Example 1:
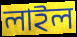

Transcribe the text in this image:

লাইল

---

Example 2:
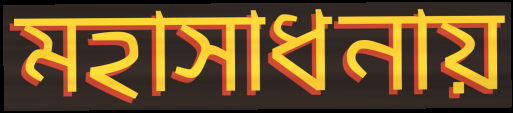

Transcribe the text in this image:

মহাসাধনায়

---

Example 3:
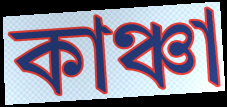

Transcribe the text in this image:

কাঞ্চা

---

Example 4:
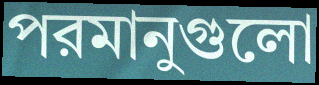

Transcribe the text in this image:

পরমানুগুলো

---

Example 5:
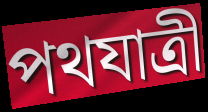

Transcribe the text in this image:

পথযাত্রী